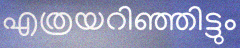
എത്രയറിഞ്ഞിട്ടും